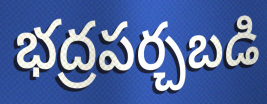
భద్రపర్చబడి